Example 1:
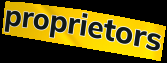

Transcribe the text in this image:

proprietors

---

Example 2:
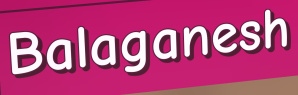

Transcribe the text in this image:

Balaganesh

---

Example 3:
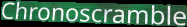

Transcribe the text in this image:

Chronoscramble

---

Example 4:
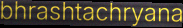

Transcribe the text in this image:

bhrashtachryana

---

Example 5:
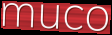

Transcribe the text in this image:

muco